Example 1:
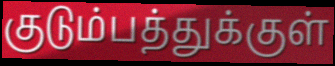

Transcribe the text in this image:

குடும்பத்துக்குள்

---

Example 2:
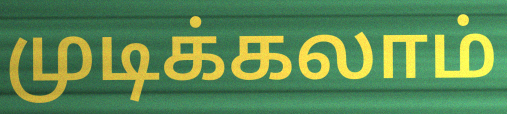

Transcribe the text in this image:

முடிக்கலாம்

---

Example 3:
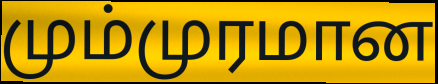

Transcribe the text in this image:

மும்முரமான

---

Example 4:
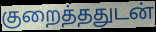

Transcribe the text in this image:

குறைத்ததுடன்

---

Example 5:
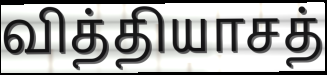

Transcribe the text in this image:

வித்தியாசத்